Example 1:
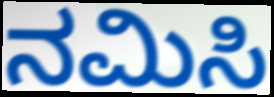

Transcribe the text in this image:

ನಮಿಸಿ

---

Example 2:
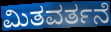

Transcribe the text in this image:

ಮಿತವರ್ತನೆ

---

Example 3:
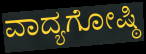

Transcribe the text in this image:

ವಾದ್ಯಗೋಷ್ಠಿ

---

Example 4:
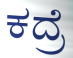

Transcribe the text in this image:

ಕದ್ರೆ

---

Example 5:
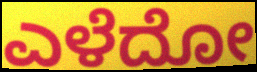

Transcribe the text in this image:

ಎಳೆದೋ